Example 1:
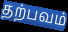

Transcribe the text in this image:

தற்பவம்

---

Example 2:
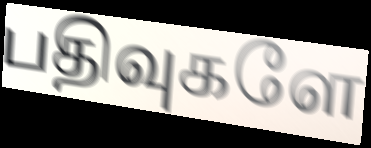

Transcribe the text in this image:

பதிவுகளே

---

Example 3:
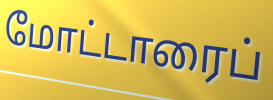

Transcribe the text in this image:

மோட்டாரைப்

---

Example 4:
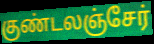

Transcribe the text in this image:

குண்டலஞ்சேர்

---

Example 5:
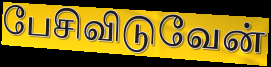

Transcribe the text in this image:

பேசிவிடுவேன்